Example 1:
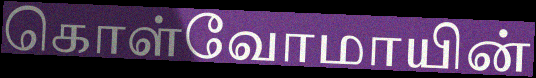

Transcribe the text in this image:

கொள்வோமாயின்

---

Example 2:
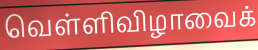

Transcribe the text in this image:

வெள்ளிவிழாவைக்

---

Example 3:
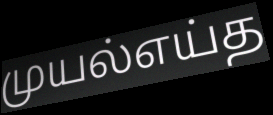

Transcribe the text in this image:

முயல்எய்த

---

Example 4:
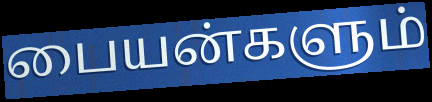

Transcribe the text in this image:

பையன்களும்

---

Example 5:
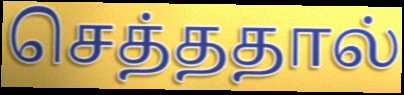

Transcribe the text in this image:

செத்ததால்